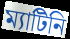
ম্যাটিনি